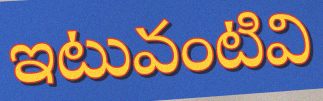
ఇటువంటివి